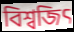
বিশ্বজিৎ